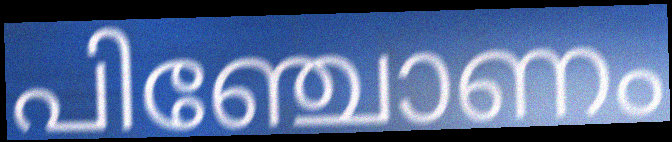
പിഞ്ചോണം